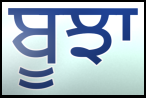
ਬੂਝਾ